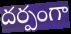
దర్పంగా